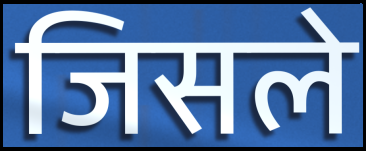
जिसले